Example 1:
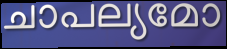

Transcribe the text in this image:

ചാപല്യമോ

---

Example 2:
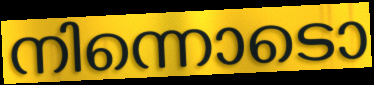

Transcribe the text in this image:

നിന്നൊടൊ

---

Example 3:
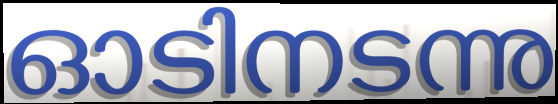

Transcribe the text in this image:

ഓടിനടന്നു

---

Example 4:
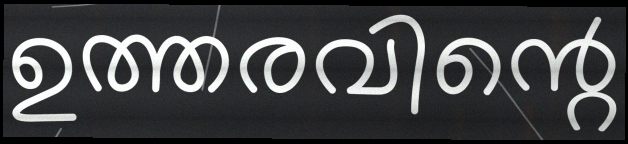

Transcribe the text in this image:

ഉത്തരവിന്റെ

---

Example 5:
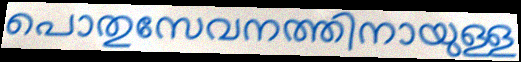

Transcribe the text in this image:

പൊതുസേവനത്തിനായുള്ള